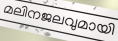
മലിനജലവുമായി